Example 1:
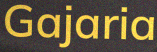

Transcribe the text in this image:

Gajaria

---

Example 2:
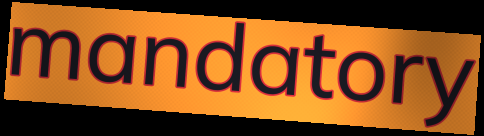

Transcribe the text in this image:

mandatory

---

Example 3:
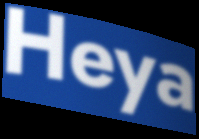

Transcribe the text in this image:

Heya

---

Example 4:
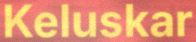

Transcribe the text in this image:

Keluskar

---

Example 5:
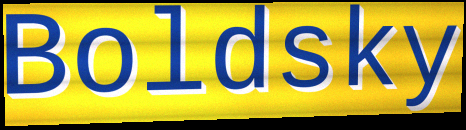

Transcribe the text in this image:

Boldsky